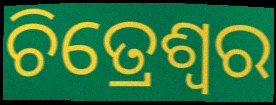
ଚିତ୍ରେଶ୍ୱର